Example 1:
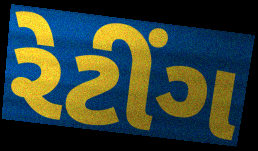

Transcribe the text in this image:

રેટીંગ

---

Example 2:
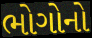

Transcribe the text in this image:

ભોગોનો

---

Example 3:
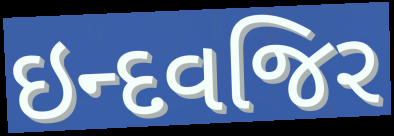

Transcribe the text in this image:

ઇન્દવજિર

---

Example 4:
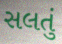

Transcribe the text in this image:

સલતું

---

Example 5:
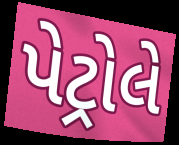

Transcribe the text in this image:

પેટ્રોલે